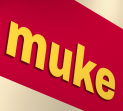
muke